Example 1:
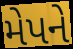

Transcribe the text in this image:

મેપને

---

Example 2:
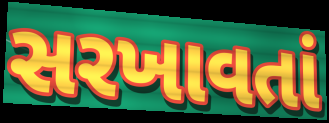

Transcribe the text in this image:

સરખાવતાં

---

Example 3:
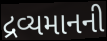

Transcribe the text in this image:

દ્રવ્યમાનની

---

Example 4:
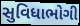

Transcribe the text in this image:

સુવિધાભોગી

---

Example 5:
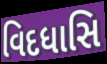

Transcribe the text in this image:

વિદધાસિ